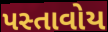
પસ્તાવોય